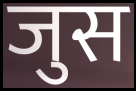
जुस